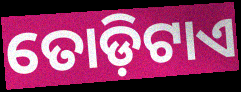
ତୋଡ଼ିଟାଏ